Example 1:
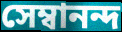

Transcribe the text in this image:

সেম্বানন্দ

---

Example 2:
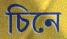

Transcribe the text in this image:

চিনে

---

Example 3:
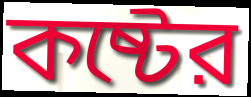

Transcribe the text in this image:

কষ্টের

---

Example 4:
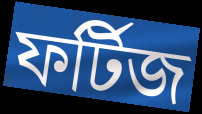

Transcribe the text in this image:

ফর্টিজ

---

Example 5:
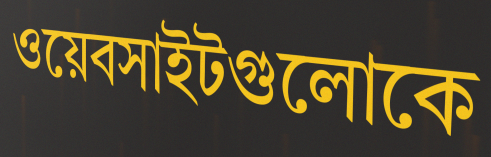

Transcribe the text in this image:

ওয়েবসাইটগুলোকে